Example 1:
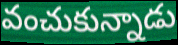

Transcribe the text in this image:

వంచుకున్నాడు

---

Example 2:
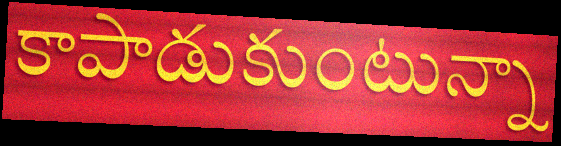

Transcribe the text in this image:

కాపాడుకుంటున్నా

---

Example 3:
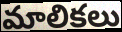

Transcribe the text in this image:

మాలికలు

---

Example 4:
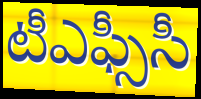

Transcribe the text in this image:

టీఎఫ్సీసీ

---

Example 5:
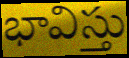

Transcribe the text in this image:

భావిస్తు